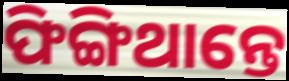
ଫିଙ୍ଗିଥାନ୍ତେ